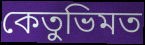
কেতুভিমত